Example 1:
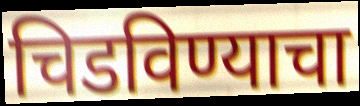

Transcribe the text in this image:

चिडविण्याचा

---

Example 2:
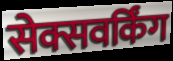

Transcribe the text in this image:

सेक्सवर्किंग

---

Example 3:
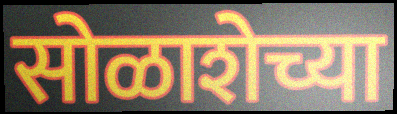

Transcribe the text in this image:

सोळाशेच्या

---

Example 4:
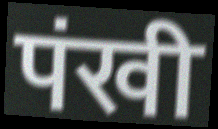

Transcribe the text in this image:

पंखी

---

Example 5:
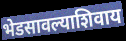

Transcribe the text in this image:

भेडसावल्याशिवाय